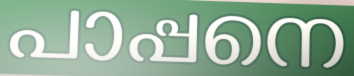
പാപ്പനെ